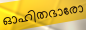
ഓഹിതഭാരോ